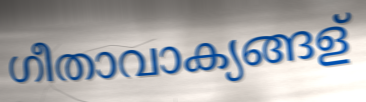
ഗീതാവാക്യങ്ങള്